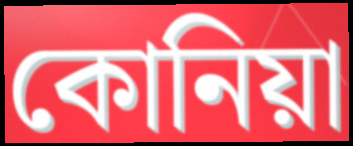
কোনিয়া